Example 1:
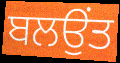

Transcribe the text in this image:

ਬਲਉਂਤ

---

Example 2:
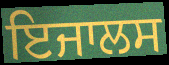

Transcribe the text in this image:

ਇਜਾਲਸ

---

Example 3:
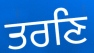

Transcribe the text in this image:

ਤਰਣਿ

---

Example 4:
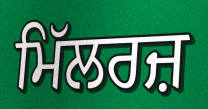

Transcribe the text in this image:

ਮਿੱਲਰਜ਼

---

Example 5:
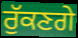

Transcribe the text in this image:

ਰੁੱਕਣਗੇ